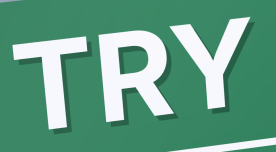
TRY